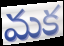
మక